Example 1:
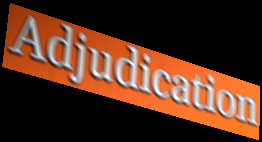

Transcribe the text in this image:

Adjudication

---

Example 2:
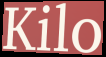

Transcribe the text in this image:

Kilo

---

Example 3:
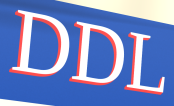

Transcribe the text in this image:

DDL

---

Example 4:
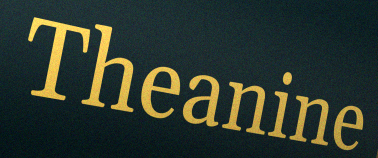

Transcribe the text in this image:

Theanine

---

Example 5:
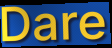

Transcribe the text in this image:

Dare